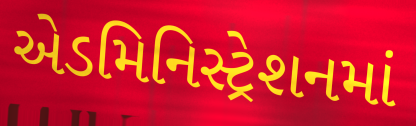
એડમિનિસ્ટ્રેશનમાં